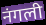
नंगली